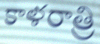
కాళరాత్రి